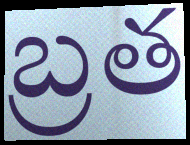
బ్రత